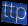
ttp